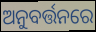
ଅନୁବର୍ତ୍ତନରେ